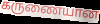
கருணையான